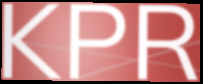
KPR